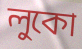
লুকো